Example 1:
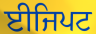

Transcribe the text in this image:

ਈਜਿਪਟ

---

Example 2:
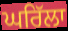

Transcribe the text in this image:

ਘਰਿੱਲਾ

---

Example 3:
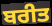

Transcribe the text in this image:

ਬਰੀਤ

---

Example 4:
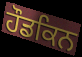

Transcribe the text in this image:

ਹੌਡਕਿਨ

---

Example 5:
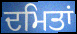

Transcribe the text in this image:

ਦਮਿਤਾਂ